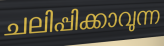
ചലിപ്പിക്കാവുന്ന